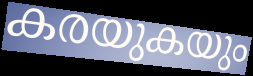
കരയുകയും